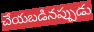
చేయబడినప్పుడు